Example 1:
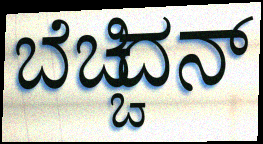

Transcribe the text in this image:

ಬೆಚ್ಚಿದನ್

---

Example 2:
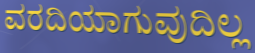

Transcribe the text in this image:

ವರದಿಯಾಗುವುದಿಲ್ಲ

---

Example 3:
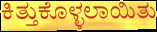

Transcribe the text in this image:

ಕಿತ್ತುಕೊಳ್ಳಲಾಯಿತು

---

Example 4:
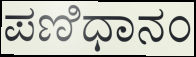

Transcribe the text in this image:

ಪಣಿಧಾನಂ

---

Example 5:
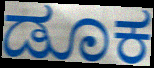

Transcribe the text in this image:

ಡೂಕ